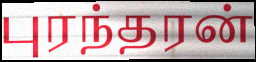
புரந்தரன்